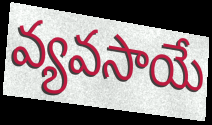
వ్యవసాయే